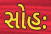
સોહઃ